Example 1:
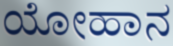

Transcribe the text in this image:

ಯೋಹಾನ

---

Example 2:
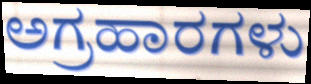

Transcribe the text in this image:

ಅಗ್ರಹಾರಗಳು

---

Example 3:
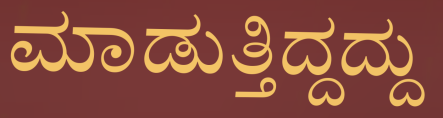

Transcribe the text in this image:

ಮಾಡುತ್ತಿದ್ದದ್ದು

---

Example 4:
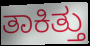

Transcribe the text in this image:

ತಾಕಿತ್ತು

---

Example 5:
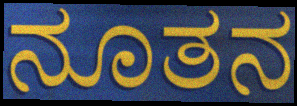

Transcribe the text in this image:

ನೂತನ